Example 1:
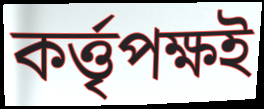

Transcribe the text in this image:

কৰ্ত্তৃপক্ষই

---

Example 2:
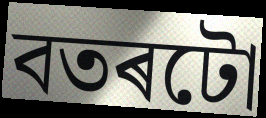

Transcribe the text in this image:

বতৰটো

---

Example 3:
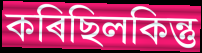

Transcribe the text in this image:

কৰিছিলকিন্তু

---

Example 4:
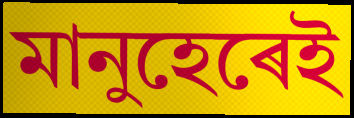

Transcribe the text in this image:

মানুহেৰেই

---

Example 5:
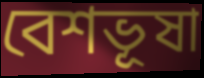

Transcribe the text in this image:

বেশভূষা